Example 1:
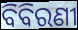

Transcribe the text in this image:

ବିବିରଣୀ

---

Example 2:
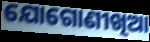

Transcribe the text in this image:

ଯୋଗୋଣୀଖିଆ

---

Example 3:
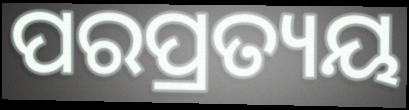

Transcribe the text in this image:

ପରପ୍ରତ୍ୟୟ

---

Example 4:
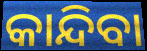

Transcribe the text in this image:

କାନ୍ଦିବା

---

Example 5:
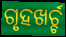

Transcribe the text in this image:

ଗୃହଖର୍ଚ୍ଚ